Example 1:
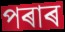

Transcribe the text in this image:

পৰাৰ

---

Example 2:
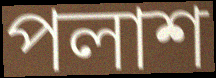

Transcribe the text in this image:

পলাশ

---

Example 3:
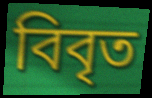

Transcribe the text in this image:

বিবৃত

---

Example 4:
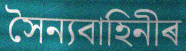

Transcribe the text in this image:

সৈন্যবাহিনীৰ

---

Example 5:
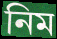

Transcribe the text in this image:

নিম